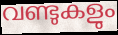
വണ്ടുകളും